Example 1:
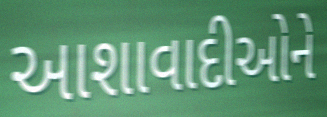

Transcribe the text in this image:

આશાવાદીઓને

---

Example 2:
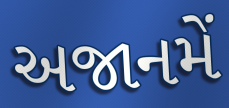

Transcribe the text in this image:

અજાનમેં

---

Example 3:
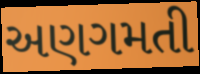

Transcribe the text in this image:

અણગમતી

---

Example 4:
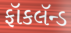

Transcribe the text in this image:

ફૉકલૅન્ડ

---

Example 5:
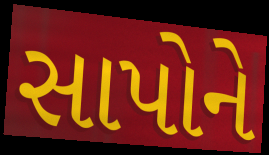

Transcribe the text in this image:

સાપોને